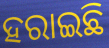
ହରାଇଛି